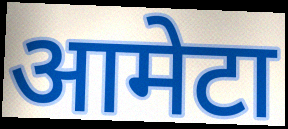
आमेटा